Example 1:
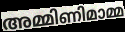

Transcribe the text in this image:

അമ്മിണിമാമ്മ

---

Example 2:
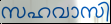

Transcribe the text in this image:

സഹവാസി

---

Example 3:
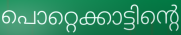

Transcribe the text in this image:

പൊറ്റെക്കാട്ടിന്റെ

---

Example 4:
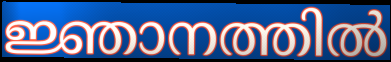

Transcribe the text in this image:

ജ്ഞാനത്തിൽ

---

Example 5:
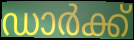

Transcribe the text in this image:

ഡാർക്ക്